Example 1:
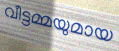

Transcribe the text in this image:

വീട്ടമ്മയുമായ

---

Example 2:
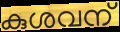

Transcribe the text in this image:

കുശവന്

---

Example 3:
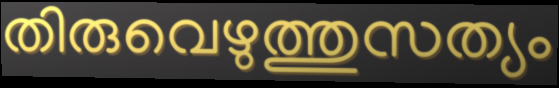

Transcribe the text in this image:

തിരുവെഴുത്തുസത്യം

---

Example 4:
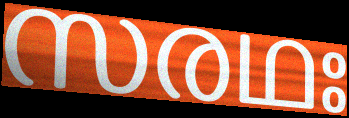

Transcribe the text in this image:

സരഥഃ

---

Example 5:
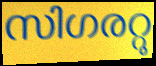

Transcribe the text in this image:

സിഗരറ്റു